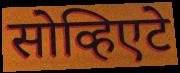
सोव्हिएटे